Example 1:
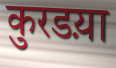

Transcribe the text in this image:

कुरडय़ा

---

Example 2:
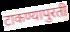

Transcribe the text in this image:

टाकण्यापुरती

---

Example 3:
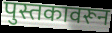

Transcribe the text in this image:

पुस्तकावरून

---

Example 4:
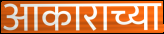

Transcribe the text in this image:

आकाराच्या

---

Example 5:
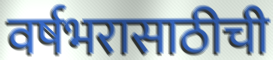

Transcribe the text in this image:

वर्षभरासाठीची